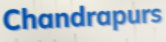
Chandrapurs